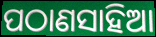
ପଠାଣସାହିଆ